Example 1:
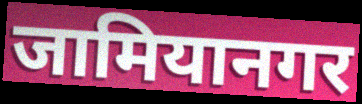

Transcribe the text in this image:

जामियानगर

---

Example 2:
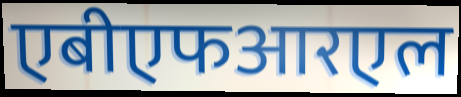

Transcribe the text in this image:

एबीएफआरएल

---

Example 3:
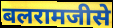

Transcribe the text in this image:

बलरामजीसे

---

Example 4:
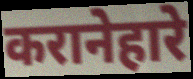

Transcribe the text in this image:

करानेहारे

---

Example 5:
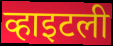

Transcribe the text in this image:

व्हाइटली